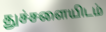
துச்சளையிடம்